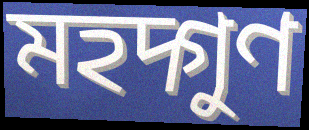
মহদ্গুণ